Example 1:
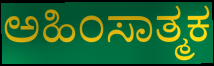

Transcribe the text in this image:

ಅಹಿಂಸಾತ್ಮಕ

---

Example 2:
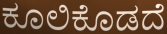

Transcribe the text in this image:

ಕೂಲಿಕೊಡದೆ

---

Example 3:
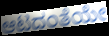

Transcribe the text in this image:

ಆಟದಂತೆಯೇ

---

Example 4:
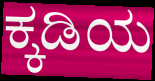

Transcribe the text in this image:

ಕ್ಕಡಿಯ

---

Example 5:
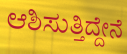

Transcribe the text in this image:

ಆಶಿಸುತ್ತಿದ್ದೇನೆ